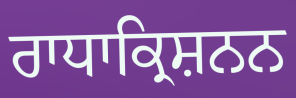
ਰਾਧਾਕ੍ਰਿਸ਼ਨਨ